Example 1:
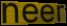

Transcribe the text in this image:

neer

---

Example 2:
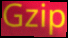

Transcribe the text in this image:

Gzip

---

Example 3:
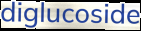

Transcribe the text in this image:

diglucoside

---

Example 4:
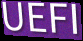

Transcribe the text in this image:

UEFI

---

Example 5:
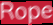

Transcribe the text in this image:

Rope